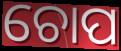
ଚୋପ